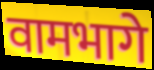
वामभागे